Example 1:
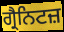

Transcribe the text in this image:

ਗ੍ਰੈਨਿਟਜ਼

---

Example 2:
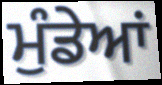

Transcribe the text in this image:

ਮੁੰਡੇਆਂ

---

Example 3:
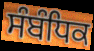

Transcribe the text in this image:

ਸੰਬੰਧਿਕ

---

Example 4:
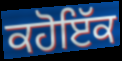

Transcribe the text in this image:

ਕਹੋਇੱਕ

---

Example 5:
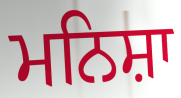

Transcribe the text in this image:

ਮਨਿਸ਼ਾ